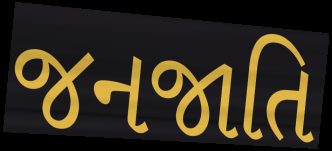
જનજાતિ